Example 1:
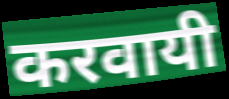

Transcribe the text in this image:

करवायी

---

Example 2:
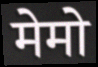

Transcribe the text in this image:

मेमो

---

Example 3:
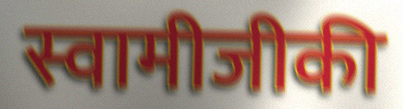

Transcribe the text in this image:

स्वामीजीकी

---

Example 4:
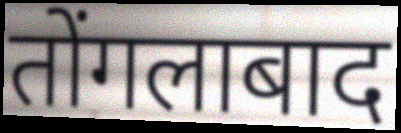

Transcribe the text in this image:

तोंगलाबाद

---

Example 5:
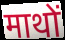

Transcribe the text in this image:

माथों